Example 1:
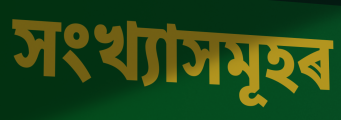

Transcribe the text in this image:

সংখ্যাসমূহৰ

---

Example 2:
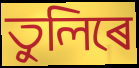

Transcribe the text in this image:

তুলিৰে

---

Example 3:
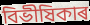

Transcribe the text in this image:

বিভীষিকাৰ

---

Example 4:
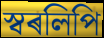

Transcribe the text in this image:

স্বৰলিপি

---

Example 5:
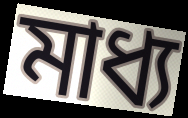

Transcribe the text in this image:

মাধ্য